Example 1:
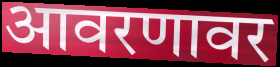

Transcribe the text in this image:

आवरणावर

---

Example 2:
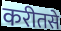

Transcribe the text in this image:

करीतसे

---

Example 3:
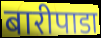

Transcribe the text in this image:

बारीपाडा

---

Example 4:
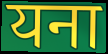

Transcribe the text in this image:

यना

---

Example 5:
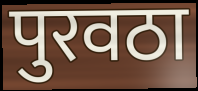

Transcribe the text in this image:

पुरवठा